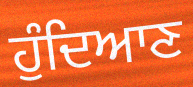
ਹੁੰਦਿਆਣ